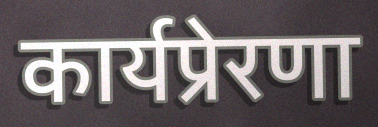
कार्यप्रेरणा